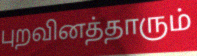
புறவினத்தாரும்